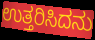
ಉತ್ತರಿಸಿದನು